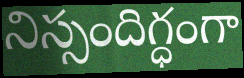
నిస్సందిగ్ధంగా